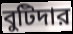
বুটিদার